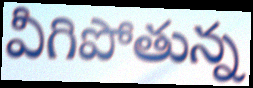
వీగిపోతున్న